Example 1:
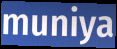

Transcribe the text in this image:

muniya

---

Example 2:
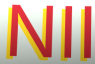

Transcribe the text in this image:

NII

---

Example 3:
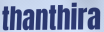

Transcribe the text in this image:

thanthira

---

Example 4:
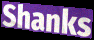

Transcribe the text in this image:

Shanks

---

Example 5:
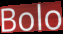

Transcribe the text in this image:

Bolo